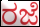
ರಜೆ